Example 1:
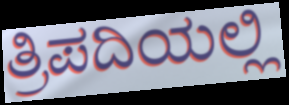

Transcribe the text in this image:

ತ್ರಿಪದಿಯಲ್ಲಿ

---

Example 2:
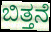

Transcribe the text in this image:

ಬಿತ್ತನೆ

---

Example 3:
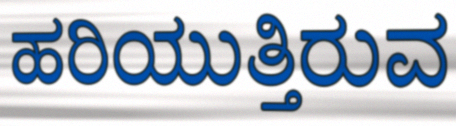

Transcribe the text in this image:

ಹರಿಯುತ್ತಿರುವ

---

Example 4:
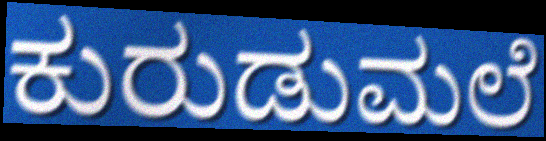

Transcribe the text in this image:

ಕುರುಡುಮಲೆ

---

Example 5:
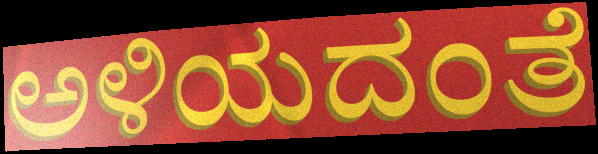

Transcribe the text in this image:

ಅಳಿಯದಂತೆ